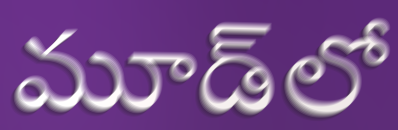
మూడ్‌లో